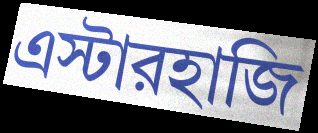
এস্টারহাজি